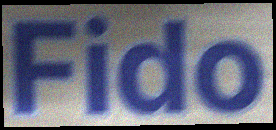
Fido